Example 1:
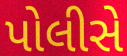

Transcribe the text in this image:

પોલીસે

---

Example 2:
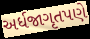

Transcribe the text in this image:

અર્ધજાગૃતપણે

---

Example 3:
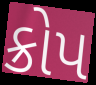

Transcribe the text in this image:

ક્રોપ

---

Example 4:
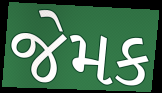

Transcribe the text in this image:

જેમક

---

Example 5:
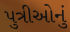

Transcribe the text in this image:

પુત્રીઓનું